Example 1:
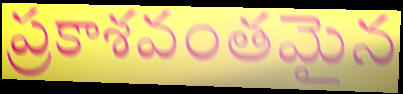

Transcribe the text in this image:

ప్రకాశవంతమైన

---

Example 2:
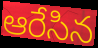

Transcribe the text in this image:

ఆరేసిన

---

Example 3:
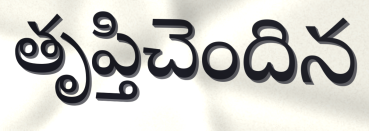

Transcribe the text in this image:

తృప్తిచెందిన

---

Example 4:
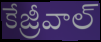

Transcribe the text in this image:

కేజ్రీవాల్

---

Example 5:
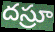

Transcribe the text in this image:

దస్రూ